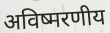
अविष्मरणीय